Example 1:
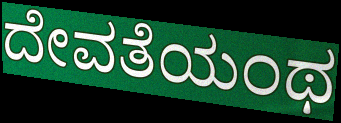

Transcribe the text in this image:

ದೇವತೆಯಂಥ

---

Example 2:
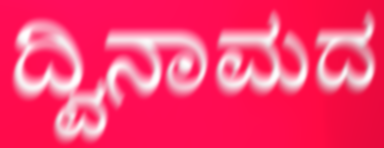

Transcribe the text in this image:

ದ್ವಿನಾಮದ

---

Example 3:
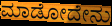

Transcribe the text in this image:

ಮಾಡೋದೇನು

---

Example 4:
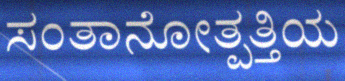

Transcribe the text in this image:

ಸಂತಾನೋತ್ಪತ್ತಿಯ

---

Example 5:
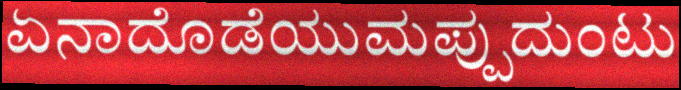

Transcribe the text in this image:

ಏನಾದೊಡೆಯುಮಪ್ಪುದುಂಟು